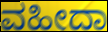
ವಹೀದಾ